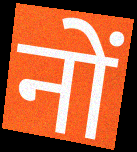
नों